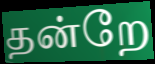
தன்றே